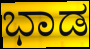
ಭಾಡ